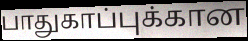
பாதுகாப்புக்கான